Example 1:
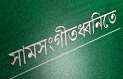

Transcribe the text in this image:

সামসংগীতধ্বনিতে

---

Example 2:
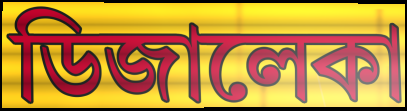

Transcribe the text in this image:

ডিজালেকা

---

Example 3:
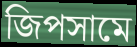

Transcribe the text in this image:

জিপসামে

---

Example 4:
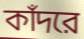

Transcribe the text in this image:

কাঁদরে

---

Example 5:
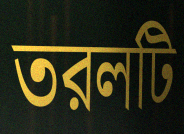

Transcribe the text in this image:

তরলটি